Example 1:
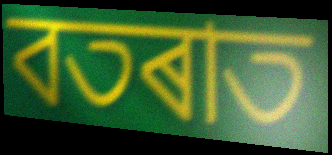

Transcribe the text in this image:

বতৰাত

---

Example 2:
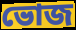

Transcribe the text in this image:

ভোজ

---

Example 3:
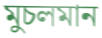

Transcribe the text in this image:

মুচলমান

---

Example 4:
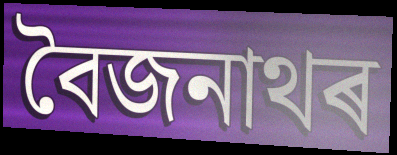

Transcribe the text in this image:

বৈজনাথৰ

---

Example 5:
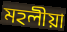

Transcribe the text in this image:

মহলীয়া